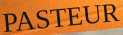
PASTEUR